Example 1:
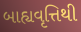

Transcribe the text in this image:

બાહ્યવૃત્તિથી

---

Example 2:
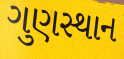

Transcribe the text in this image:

ગુણસ્થાન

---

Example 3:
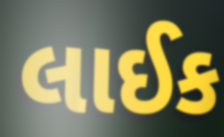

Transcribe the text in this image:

લાઈક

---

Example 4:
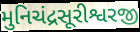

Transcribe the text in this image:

મુનિચંદ્રસૂરીશ્વરજી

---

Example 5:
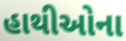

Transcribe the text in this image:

હાથીઓના